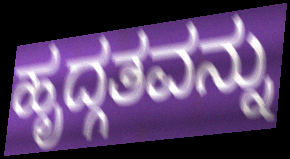
ಹೃದ್ಗತವನ್ನು